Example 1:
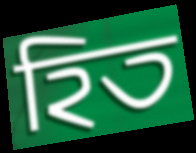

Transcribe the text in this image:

হিত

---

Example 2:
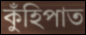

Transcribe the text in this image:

কুঁহিপাত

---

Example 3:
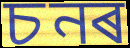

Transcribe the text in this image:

চনৰ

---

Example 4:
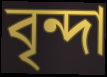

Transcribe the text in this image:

বৃন্দা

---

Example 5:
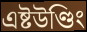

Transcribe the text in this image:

এষ্টউণ্ডিং